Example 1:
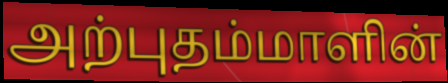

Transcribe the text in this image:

அற்புதம்மாளின்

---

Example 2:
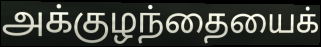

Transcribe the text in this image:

அக்குழந்தையைக்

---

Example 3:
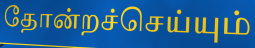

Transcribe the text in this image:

தோன்றச்செய்யும்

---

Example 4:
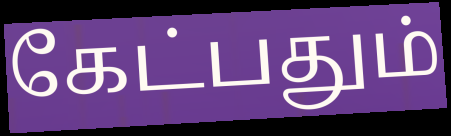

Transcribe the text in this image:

கேட்பதும்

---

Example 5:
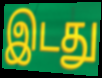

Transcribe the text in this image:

இடது